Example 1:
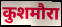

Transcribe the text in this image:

कुशमौरा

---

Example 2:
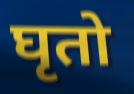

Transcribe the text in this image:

घृतो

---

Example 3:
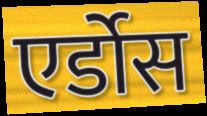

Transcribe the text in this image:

एर्डोस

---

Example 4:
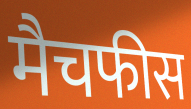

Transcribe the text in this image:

मैचफीस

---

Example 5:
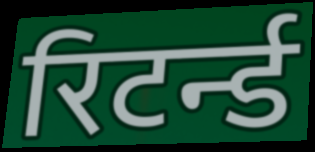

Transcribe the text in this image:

रिटर्न्ड